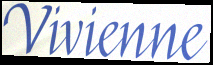
Vivienne